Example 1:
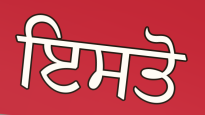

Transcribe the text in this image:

ਇਸਤੋ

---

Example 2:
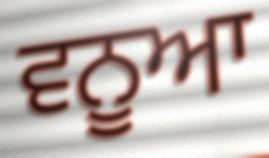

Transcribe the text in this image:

ਵਨੂਆ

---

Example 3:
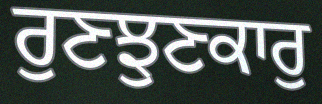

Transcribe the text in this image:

ਰੁਣਝੁਣਕਾਰੁ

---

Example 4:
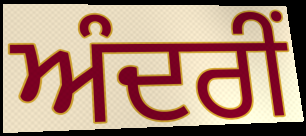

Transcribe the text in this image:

ਅੰਦਰੀਂ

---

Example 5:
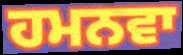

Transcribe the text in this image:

ਹਮਨਵਾ